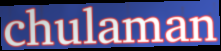
chulaman